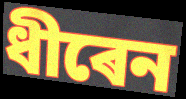
ধীৰেন